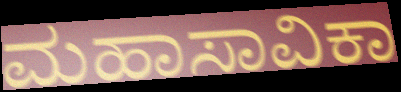
ಮಹಾಸಾವಿಕಾ